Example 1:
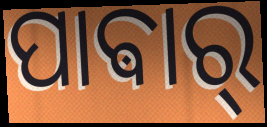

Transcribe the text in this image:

ପାଵାର୍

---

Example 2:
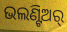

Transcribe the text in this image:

ଭଲଣ୍ଟିଅର୍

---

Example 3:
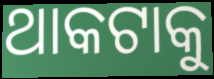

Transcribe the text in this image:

ଥାକଟାକୁ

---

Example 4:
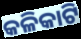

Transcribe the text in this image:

କଳିକାଟି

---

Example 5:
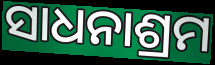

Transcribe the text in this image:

ସାଧନାଶ୍ରମ